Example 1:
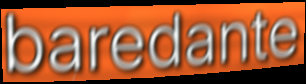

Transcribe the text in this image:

baredante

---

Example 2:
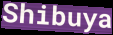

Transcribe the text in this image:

Shibuya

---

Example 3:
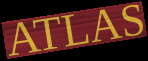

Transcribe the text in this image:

ATLAS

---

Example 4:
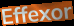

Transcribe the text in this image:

Effexor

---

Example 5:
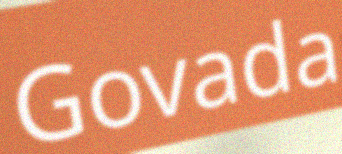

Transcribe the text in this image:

Govada